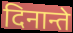
दिनान्ते